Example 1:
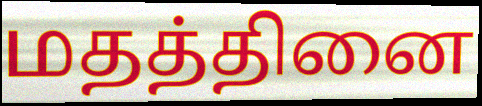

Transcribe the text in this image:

மதத்தினை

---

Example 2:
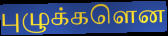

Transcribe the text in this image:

புழுக்களென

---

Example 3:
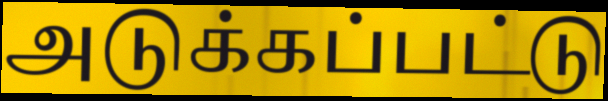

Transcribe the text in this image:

அடுக்கப்பட்டு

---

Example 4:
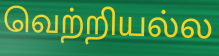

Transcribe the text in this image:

வெற்றியல்ல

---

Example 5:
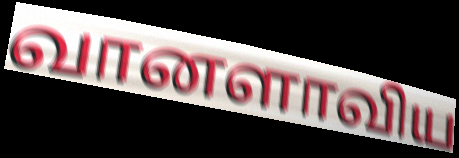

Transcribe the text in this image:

வானளாவிய